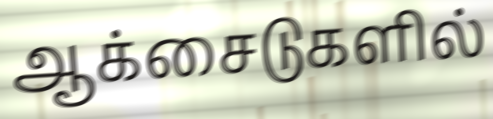
ஆக்சைடுகளில்